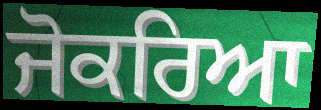
ਜੋਕਰਿਆ